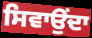
ਸਿਵਾਉਂਦਾ